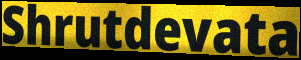
Shrutdevata